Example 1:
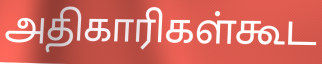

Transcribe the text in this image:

அதிகாரிகள்கூட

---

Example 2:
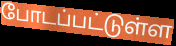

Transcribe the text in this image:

போடப்பட்டுள்ள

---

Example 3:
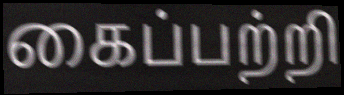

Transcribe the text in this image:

கைப்பற்றி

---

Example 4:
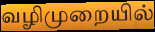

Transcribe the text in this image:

வழிமுறையில்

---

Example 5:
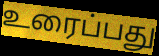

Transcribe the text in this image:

உரைப்பது